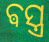
ଵସ୍ତ୍ର